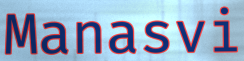
Manasvi